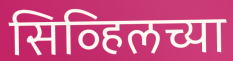
सिव्हिलच्या